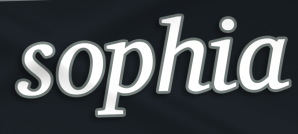
sophia